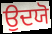
ਉਦਯੋ